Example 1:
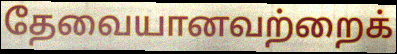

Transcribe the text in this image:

தேவையானவற்றைக்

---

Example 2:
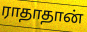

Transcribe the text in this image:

ராதாதான்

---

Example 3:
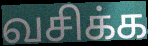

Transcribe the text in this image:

வசிக்க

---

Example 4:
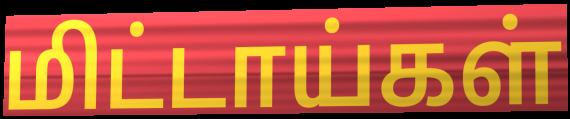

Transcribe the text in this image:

மிட்டாய்கள்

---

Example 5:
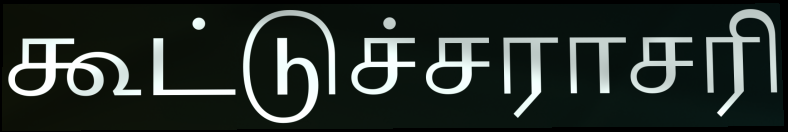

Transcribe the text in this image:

கூட்டுச்சராசரி